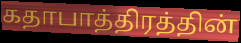
கதாபாத்திரத்தின்